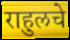
राहुलचे